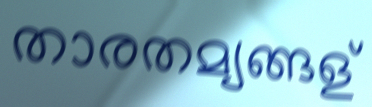
താരതമ്യങ്ങള്